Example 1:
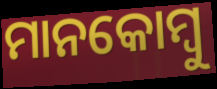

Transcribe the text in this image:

ମାନକୋମ୍ବୁ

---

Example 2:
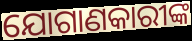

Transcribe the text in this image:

ଯୋଗାଣକାରୀଙ୍କ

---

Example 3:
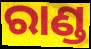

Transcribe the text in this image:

ରାଣ୍ଡ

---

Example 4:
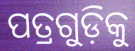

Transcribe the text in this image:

ପତ୍ରଗୁଡ଼ିକୁ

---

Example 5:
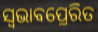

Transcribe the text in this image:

ସ୍ୱଭାବପ୍ରେରିତ